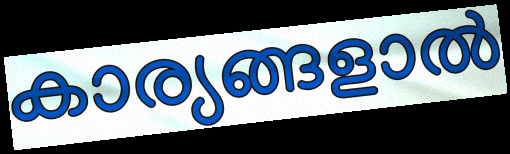
കാര്യങ്ങളാൽ